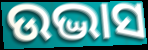
ଉଦ୍ଭାସ